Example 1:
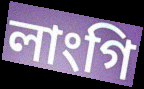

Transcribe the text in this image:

লাংগি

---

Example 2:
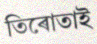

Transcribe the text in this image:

তিৰোতাই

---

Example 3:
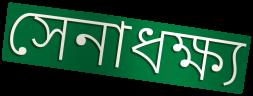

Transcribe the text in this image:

সেনাধক্ষ্য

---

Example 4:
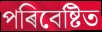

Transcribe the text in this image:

পৰিবেষ্টিত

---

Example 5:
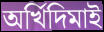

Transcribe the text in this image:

অৰ্খিদিমাই